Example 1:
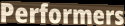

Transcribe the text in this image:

Performers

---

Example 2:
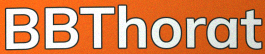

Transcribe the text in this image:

BBThorat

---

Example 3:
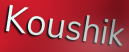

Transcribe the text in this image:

Koushik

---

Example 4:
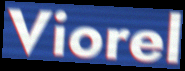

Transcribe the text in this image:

Viorel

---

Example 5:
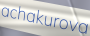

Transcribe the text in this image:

achakurova